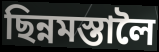
ছিন্নমস্তালৈ